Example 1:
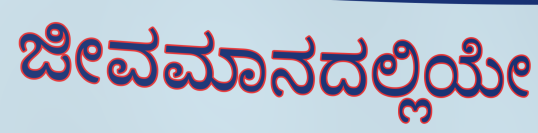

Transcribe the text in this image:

ಜೀವಮಾನದಲ್ಲಿಯೇ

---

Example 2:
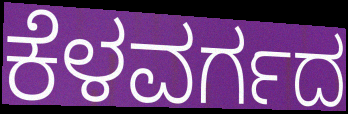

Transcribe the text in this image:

ಕೆಳವರ್ಗದ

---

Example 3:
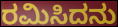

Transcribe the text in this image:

ರಮಿಸಿದನು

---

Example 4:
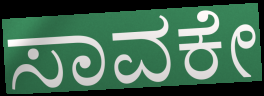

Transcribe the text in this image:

ಸಾವಕೇ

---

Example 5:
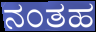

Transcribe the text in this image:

ನಂತಹ